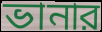
ভানার